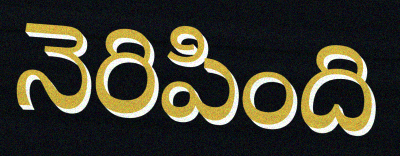
నెరిపింది